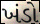
ખંડો